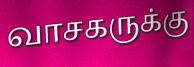
வாசகருக்கு